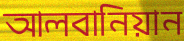
আলবানিয়ান